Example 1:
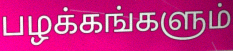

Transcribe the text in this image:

பழக்கங்களும்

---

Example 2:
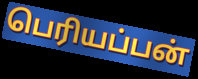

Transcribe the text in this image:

பெரியப்பன்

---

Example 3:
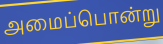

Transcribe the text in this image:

அமைப்பொன்று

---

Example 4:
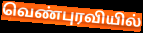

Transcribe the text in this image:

வெண்புரவியில்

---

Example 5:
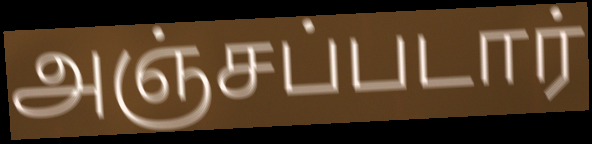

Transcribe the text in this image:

அஞ்சப்படார்